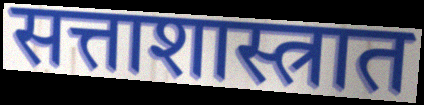
सत्ताशास्त्रात